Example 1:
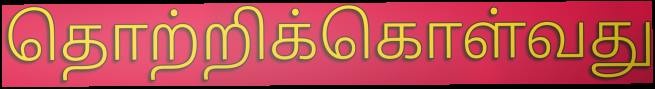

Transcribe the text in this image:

தொற்றிக்கொள்வது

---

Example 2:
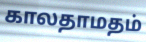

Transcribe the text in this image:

காலதாமதம்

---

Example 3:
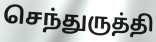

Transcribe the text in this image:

செந்துருத்தி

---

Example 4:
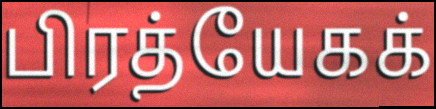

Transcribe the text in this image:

பிரத்யேகக்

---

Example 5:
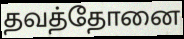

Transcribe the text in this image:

தவத்தோனை